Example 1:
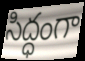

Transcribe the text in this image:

సిద్ధంగా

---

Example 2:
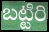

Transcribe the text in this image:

బట్టిరి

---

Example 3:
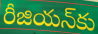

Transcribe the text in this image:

రీజియన్‌కు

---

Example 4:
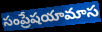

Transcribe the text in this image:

సంప్రేషయామాస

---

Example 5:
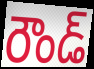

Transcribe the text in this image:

రౌండ్